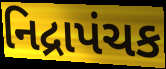
નિદ્રાપંચક